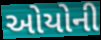
ઓયોની